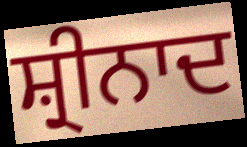
ਸ਼੍ਰੀਨਾਦ